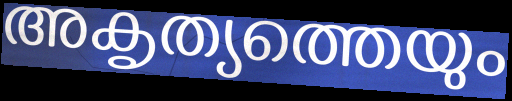
അകൃത്യത്തെയും